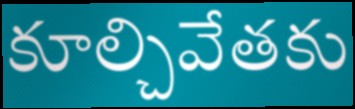
కూల్చివేతకు